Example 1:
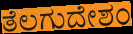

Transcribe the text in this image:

ತೆಲಗುದೇಶಂ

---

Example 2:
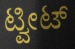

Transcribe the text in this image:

ಟ್ವೀಟ್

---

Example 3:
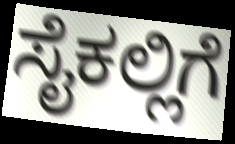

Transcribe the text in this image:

ಸೈಕಲ್ಲಿಗೆ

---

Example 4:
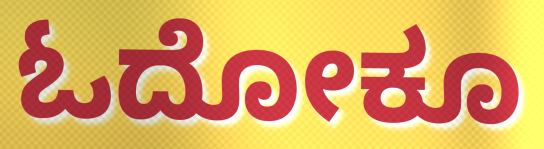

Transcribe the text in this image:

ಓದೋಕೂ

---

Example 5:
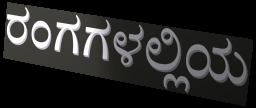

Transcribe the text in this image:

ರಂಗಗಳಲ್ಲಿಯ